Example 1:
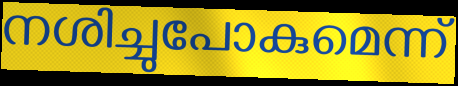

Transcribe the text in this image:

നശിച്ചുപോകുമെന്ന്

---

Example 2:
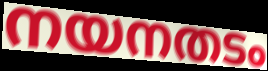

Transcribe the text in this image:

നയനതടം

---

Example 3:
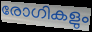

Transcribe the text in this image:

രോഗികളും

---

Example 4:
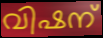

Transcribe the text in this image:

വിഷന്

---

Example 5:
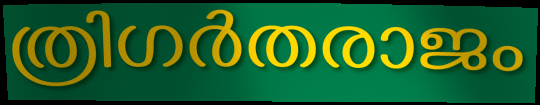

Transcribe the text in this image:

ത്രിഗർതരാജം